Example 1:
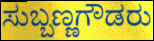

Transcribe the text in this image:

ಸುಬ್ಬಣ್ಣಗೌಡರು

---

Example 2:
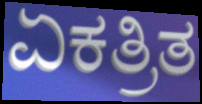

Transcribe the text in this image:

ಏಕತ್ರಿತ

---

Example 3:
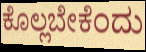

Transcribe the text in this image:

ಕೊಲ್ಲಬೇಕೆಂದು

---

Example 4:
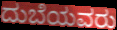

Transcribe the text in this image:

ದುಬೆಯವರು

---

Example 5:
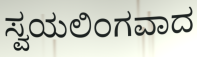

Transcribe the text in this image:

ಸ್ವಯಲಿಂಗವಾದ